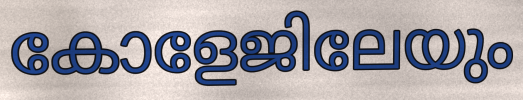
കോളേജിലേയും